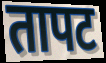
तापट